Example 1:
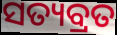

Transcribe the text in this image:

ସତ୍ୟବ୍ରତ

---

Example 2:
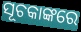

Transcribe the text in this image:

ସୂଚକାଙ୍କରେ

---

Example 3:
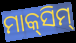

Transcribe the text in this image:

ମାକ୍‍ସିମ୍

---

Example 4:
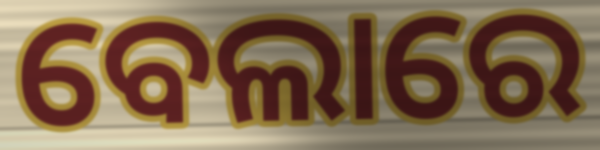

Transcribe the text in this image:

ବେଲାରେ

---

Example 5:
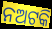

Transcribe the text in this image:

ନଅଟକି